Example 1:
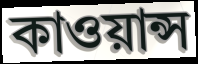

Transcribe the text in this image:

কাওয়ান্স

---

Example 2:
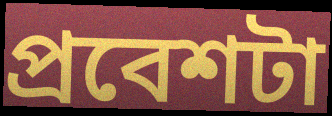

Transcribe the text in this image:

প্রবেশটা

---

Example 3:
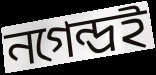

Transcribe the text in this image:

নগেন্দ্রই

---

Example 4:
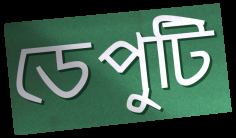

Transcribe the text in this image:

ডেপুটি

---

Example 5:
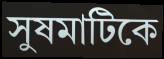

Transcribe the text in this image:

সুষমাটিকে